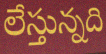
లేస్తున్నది